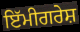
ਇੱਮੀਗਰੇਸ਼